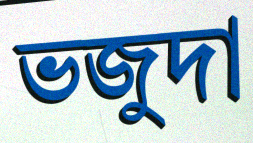
ভজুদা